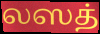
லஸத்